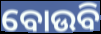
ବୋଉବି